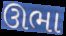
ઊભા